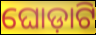
ଘୋଡ଼ାଟି